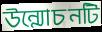
উন্মোচনটি